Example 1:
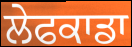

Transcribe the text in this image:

ਲੇਫਕਾਡਾ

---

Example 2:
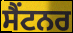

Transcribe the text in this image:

ਸੈਂਟਨਰ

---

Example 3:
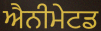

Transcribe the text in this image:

ਐਨੀਮੇਟਡ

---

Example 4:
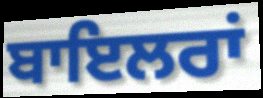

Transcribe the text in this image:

ਬਾਇਲਰਾਂ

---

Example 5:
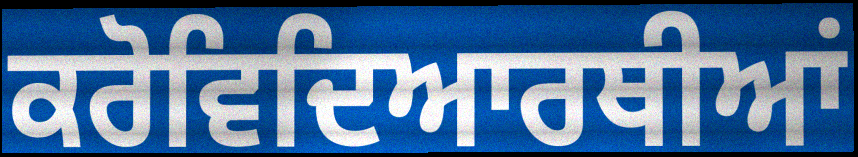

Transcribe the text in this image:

ਕਰੋਵਿਦਿਆਰਥੀਆਂ